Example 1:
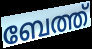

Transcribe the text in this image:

ബേത്ത്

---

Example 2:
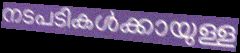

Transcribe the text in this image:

നടപടികൾക്കായുള്ള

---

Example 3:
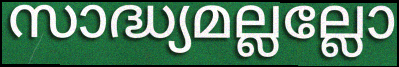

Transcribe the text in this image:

സാദ്ധ്യമല്ലല്ലോ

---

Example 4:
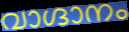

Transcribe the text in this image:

വാഗ്ദാനം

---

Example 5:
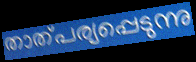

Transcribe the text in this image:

താത്പര്യപ്പെടുന്നു